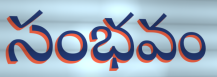
సంభవం